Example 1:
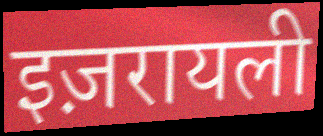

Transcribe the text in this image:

इज़रायली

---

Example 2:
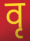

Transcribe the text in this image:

वृ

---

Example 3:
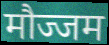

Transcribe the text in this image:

मौज्जम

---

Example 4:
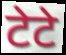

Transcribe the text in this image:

टेटे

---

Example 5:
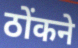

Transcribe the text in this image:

ठोंकने